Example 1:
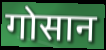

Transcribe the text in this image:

गोसान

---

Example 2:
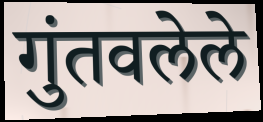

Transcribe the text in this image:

गुंतवलेले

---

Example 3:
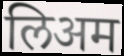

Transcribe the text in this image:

लिअम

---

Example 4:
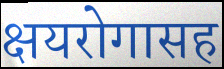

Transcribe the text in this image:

क्षयरोगासह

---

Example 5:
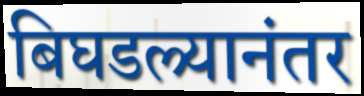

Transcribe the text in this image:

बिघडल्यानंतर